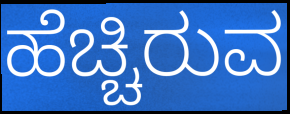
ಹೆಚ್ಚಿರುವ